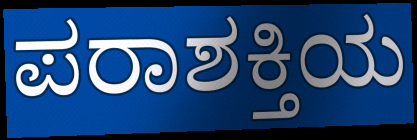
ಪರಾಶಕ್ತಿಯ